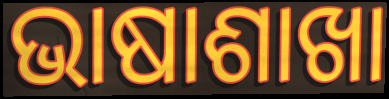
ଭାଷାଶାଖା